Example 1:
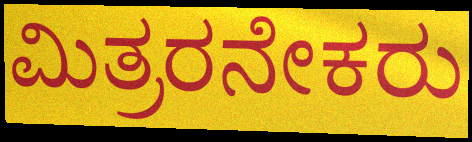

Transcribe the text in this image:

ಮಿತ್ರರನೇಕರು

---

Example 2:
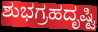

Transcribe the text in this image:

ಶುಭಗ್ರಹದೃಷ್ಟಿ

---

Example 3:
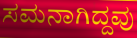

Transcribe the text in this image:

ಸಮನಾಗಿದ್ದವು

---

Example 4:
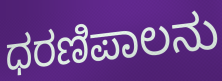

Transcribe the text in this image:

ಧರಣಿಪಾಲನು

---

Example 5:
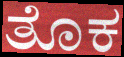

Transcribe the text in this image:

ತೊಕ